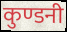
कुण्डनी